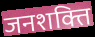
जनशक्ति